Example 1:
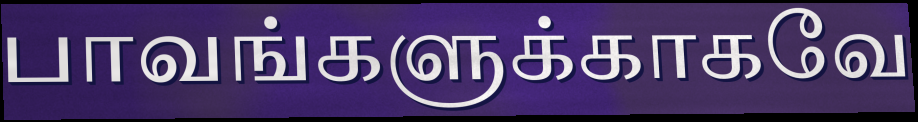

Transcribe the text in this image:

பாவங்களுக்காகவே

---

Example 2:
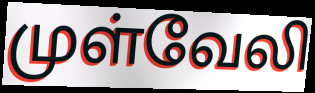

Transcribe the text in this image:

முள்வேலி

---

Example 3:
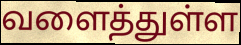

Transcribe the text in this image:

வளைத்துள்ள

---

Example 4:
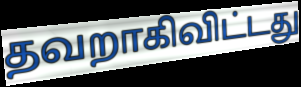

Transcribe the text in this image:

தவறாகிவிட்டது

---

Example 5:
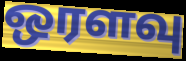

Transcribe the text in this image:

ஒரளவு